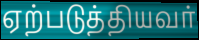
ஏற்படுத்தியவர்